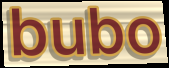
bubo